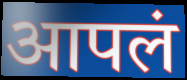
आपलं